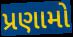
પ્રણામો